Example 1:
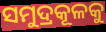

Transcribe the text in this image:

ସମୁଦ୍ରକୂଳକୁ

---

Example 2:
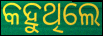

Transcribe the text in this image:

କହୁଥିଲେ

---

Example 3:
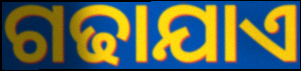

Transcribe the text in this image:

ଗଢାଯାଏ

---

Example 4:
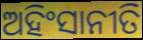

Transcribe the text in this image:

ଅହିଂସାନୀତି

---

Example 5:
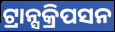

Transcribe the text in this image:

ଟ୍ରାନ୍ସକ୍ରିପସନ